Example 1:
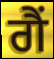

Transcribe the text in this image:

ਗੈਂ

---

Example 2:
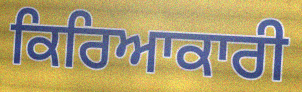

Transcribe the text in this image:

ਕਿਰਿਆਕਾਰੀ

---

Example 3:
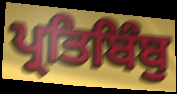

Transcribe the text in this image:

ਪ੍ਰਤਿਬਿੰਬੁ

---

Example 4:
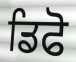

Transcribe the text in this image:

ਡਿਫੋ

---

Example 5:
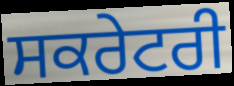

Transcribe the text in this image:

ਸਕਰੇਟਰੀ